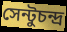
সেন্টুচন্দ্র